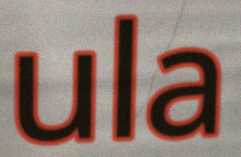
ula